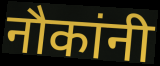
नौकांनी